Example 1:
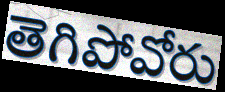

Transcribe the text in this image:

తెగిపోవోరు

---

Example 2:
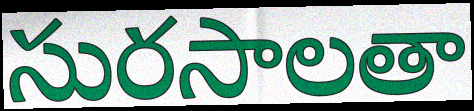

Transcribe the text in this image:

సురసాలతా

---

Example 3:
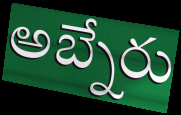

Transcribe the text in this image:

అబ్నేరు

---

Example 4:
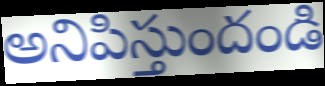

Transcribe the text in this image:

అనిపిస్తుందండి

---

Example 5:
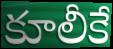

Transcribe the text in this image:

కూలీకే